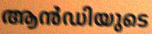
ആൻഡിയുടെ